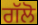
ਗੱਲੋ